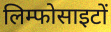
लिम्फोसाइटों